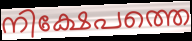
നിക്ഷേപത്തെ